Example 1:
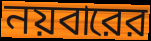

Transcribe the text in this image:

নয়বারের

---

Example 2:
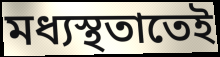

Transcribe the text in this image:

মধ্যস্থতাতেই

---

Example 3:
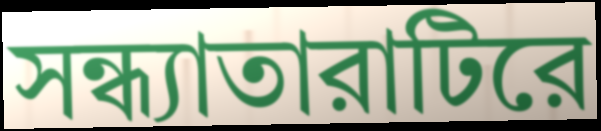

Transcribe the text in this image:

সন্ধ্যাতারাটিরে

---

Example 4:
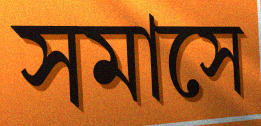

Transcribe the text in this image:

সমাসে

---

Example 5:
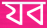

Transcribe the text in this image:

যব